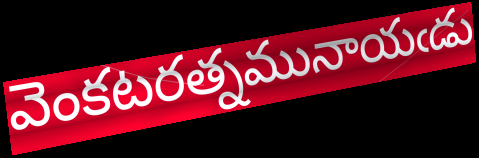
వెంకటరత్నమునాయఁడు